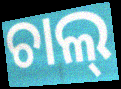
ଚାଲ୍